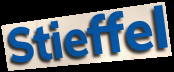
Stieffel